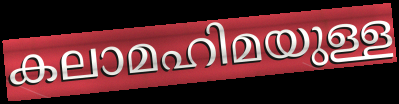
കലാമഹിമയുള്ള